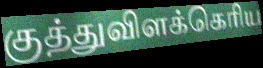
குத்துவிளக்கெரிய